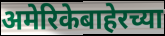
अमेरिकेबाहेरच्या